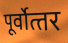
पूर्वोत्‍तर